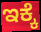
ಇಕ್ಕೆ